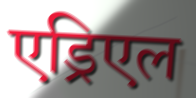
एड्रिएल